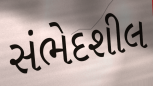
સંભેદશીલ